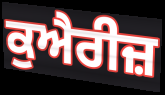
ਕੁਐਰੀਜ਼